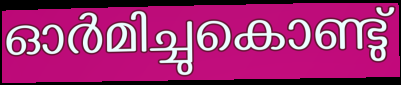
ഓർമിച്ചുകൊണ്ടു്